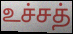
உச்சத்